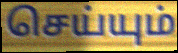
செய்யும்